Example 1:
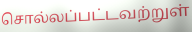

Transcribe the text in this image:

சொல்லப்பட்டவற்றுள்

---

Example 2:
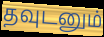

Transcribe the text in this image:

தவுடனும்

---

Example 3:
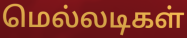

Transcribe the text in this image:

மெல்லடிகள்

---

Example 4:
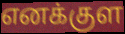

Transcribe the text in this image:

எனக்குள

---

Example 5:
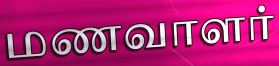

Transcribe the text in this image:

மணவாளர்